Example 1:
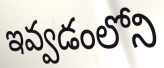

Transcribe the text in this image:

ఇవ్వడంలోని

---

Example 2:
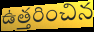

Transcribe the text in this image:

ఉత్తరించిన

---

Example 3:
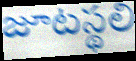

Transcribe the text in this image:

జూటస్థలి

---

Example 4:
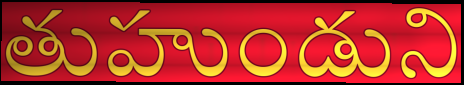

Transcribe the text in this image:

తుహుండుని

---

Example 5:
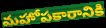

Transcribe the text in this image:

మహోపకారానికి